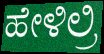
ಹೇಳಿಲ್ರಿ